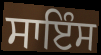
ਸਾਇੰਸ